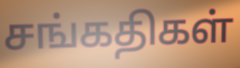
சங்கதிகள்